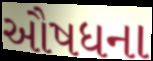
ઔષધના